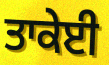
ਤਾਕੇਈ